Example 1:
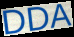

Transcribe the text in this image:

DDA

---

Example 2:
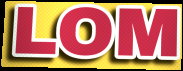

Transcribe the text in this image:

LOM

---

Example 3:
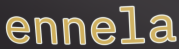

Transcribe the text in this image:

ennela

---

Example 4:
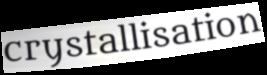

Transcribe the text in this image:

crystallisation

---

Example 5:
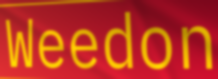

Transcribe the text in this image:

Weedon